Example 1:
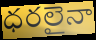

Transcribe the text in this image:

ధరలైనా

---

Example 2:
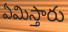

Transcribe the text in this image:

ఏమిస్తారు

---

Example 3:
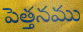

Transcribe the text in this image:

పెత్తనము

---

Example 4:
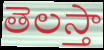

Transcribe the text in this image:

తెలస్తా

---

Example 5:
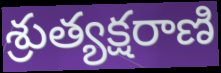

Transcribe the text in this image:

శ్రుత్యక్షరాణి